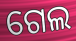
ଗେଲ